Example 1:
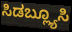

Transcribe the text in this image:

ಸಿಡಬ್ಲ್ಯೂಸಿ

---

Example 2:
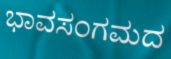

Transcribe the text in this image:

ಭಾವಸಂಗಮದ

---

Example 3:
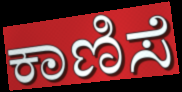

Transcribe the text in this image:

ಕಾಣಿಸೆ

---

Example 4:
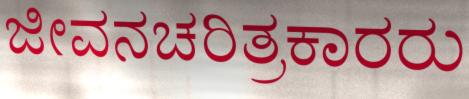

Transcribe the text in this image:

ಜೀವನಚರಿತ್ರಕಾರರು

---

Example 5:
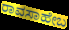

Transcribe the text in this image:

ರಾವಸಾಹೇಬ